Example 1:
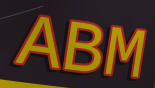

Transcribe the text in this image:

ABM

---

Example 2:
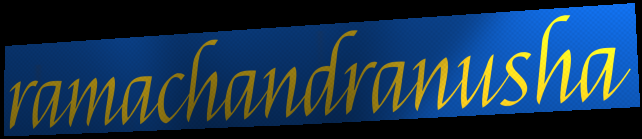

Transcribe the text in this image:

ramachandranusha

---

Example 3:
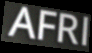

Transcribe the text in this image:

AFRI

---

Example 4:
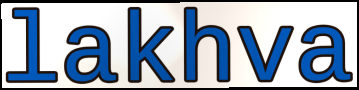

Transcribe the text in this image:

lakhva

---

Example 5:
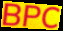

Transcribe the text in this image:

BPC